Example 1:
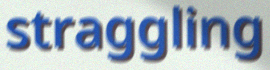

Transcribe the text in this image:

straggling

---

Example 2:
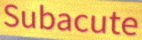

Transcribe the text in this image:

Subacute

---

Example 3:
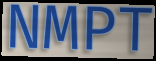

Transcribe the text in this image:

NMPT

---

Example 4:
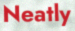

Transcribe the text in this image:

Neatly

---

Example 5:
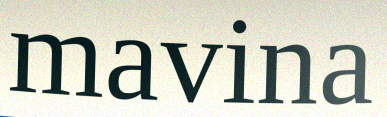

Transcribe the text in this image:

mavina